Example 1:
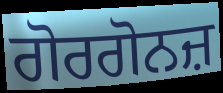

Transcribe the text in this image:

ਗੋਰਗੋਨਜ਼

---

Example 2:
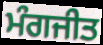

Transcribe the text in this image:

ਮੰਗਜੀਤ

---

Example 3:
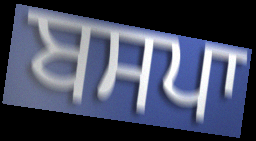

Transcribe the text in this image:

ਬਸਪਾ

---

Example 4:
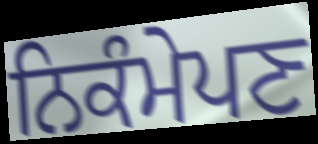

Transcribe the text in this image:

ਨਿਕੰਮੇਪਣ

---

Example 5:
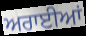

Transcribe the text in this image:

ਅਰਾਈਆਂ